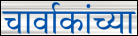
चार्वाकांच्या